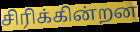
சிரிக்கின்றன